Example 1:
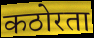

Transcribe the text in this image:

कठोरता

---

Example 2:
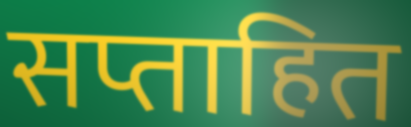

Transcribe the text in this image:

सप्ताहित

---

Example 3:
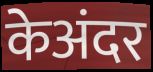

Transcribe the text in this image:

केअंदर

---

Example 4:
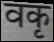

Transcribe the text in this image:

वकृ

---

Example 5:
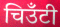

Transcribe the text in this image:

चिउँटी